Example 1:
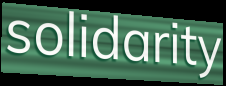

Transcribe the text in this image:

solidarity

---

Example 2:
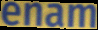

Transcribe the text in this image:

enam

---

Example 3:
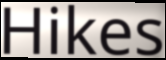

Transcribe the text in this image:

Hikes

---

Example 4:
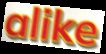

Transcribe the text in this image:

alike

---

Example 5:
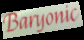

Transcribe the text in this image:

Baryonic